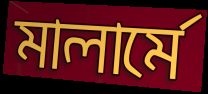
মালার্মে